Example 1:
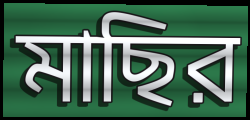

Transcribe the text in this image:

মাছির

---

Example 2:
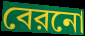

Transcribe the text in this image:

বেরনো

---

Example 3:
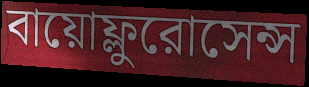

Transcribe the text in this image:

বায়োফ্লুরোসেন্স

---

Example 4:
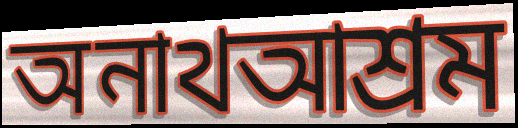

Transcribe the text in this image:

অনাথআশ্রম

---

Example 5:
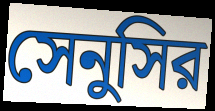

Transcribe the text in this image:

সেনুসির